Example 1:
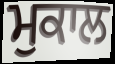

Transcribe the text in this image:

ਮੁਕਾਲ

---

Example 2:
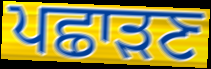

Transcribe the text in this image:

ਪਛਾੜਣ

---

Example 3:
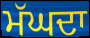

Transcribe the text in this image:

ਮੱਘਦਾ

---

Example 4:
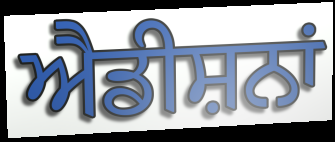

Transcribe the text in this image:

ਐਡੀਸ਼ਨਾਂ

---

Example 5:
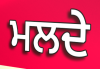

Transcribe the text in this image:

ਮਲਦੇ